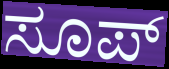
ಸೂಪ್